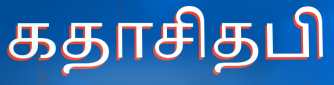
கதாசிதபி